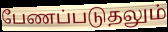
பேணப்படுதலும்